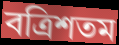
বত্রিশতম